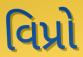
વિપ્રો